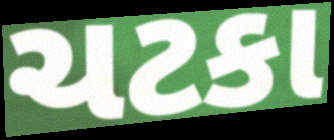
ચટકા